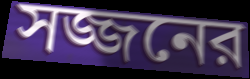
সজ্জনের